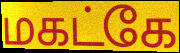
மகட்கே